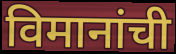
विमानांची